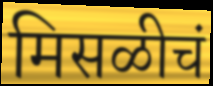
मिसळीचं